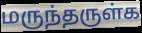
மருந்தருள்க